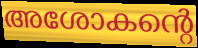
അശോകന്റെ